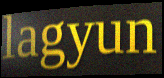
lagyun